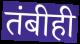
तंबीही